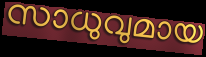
സാധുവുമായ